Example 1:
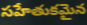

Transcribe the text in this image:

సహేతుకమైన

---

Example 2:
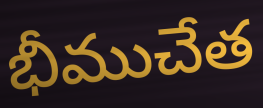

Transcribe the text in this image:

భీముచేత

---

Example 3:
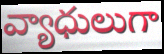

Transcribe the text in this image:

వ్యాధులుగా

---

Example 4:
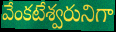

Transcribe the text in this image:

వేంకటేశ్వరునిగా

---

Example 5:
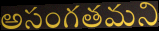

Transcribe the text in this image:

అసంగతమని